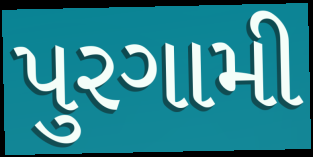
પુરગામી